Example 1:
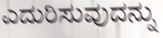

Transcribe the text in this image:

ಎದುರಿಸುವುದನ್ನು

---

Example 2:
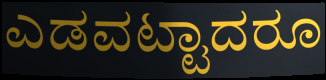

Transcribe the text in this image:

ಎಡವಟ್ಟಾದರೂ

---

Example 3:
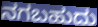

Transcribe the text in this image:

ನಗಬಹುದು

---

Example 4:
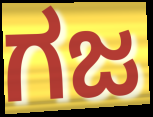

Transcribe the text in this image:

ಗಜ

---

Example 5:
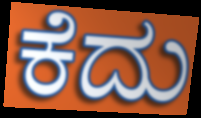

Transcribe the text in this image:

ಕೆದು